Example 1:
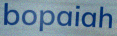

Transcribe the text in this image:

bopaiah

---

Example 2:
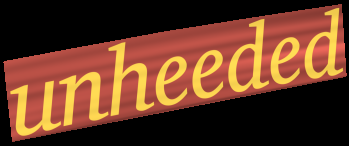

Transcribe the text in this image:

unheeded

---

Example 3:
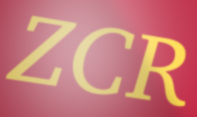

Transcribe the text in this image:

ZCR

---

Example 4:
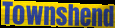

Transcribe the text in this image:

Townshend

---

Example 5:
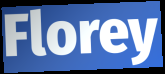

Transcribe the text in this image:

Florey